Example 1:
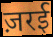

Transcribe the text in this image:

ज़रई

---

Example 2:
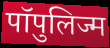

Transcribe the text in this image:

पॉपुलिज्म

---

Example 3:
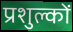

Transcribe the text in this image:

प्रशुल्कों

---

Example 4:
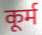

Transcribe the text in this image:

कूर्म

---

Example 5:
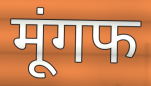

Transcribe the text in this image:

मूंगफ